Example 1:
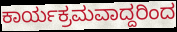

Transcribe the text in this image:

ಕಾರ್ಯಕ್ರಮವಾದ್ದರಿಂದ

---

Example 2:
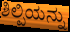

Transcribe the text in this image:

ಶಿಲ್ಪಿಯನ್ನು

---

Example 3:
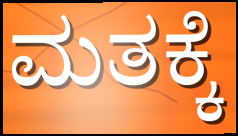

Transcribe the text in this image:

ಮತಕ್ಕೆ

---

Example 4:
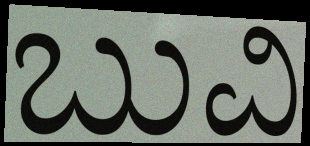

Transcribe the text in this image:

ಬುವಿ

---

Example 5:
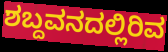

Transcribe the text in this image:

ಶಬ್ದವನದಲ್ಲಿರಿವ